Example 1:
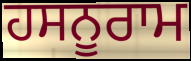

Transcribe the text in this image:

ਹਸਨੂਰਾਮ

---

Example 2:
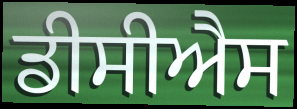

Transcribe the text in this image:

ਡੀਸੀਐਸ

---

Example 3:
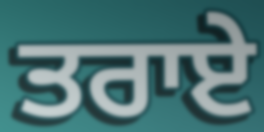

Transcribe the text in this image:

ਤਰਾਏ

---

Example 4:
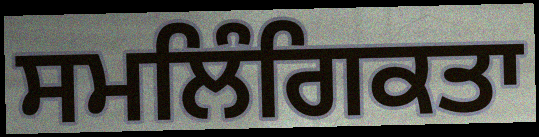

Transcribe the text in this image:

ਸਮਲਿੰਗਿਕਤਾ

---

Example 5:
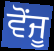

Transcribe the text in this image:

ਵੋਂਜੂ